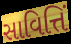
સાવિત્તિં